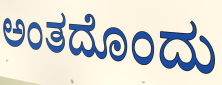
ಅಂತದೊಂದು